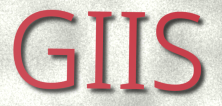
GIIS